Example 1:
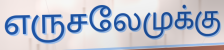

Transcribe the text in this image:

எருசலேமுக்கு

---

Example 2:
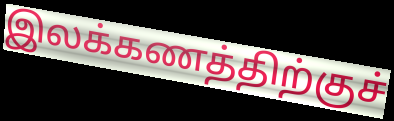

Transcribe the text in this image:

இலக்கணத்திற்குச்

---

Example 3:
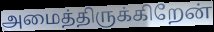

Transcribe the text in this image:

அமைத்திருக்கிறேன்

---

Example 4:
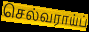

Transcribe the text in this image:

செல்வராய்ப்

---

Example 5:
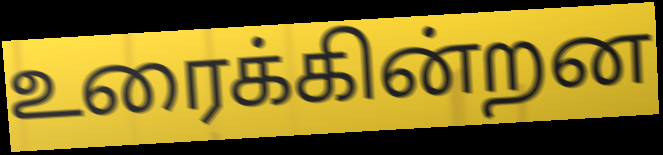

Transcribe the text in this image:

உரைக்கின்றன